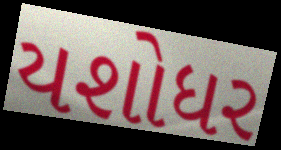
યશોધર